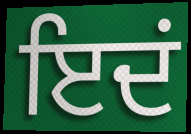
ਇਦਂ